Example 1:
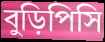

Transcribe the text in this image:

বুড়িপিসি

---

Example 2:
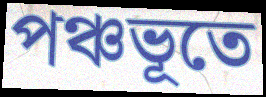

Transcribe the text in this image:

পঞ্চভূতে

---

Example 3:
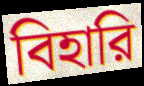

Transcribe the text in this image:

বিহারি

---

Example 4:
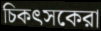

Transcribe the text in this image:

চিকৎসকেরা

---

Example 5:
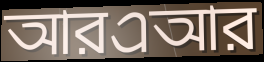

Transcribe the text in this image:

আরএআর